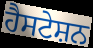
ਹੈਸਟੇਸ਼ਨ